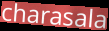
charasala